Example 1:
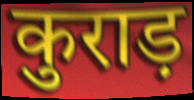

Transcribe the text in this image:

कुराड़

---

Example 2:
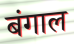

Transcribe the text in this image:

बंगाल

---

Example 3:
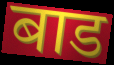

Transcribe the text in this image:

बाड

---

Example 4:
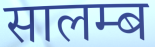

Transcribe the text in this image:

सालम्ब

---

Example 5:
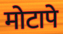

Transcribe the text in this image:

मोटापे